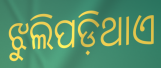
ଝୁଲିପଡ଼ିଥାଏ